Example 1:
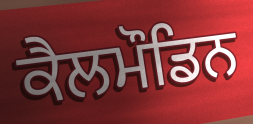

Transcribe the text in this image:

ਕੈਲਮੌਡਿਨ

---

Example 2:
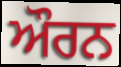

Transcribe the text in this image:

ਔਰਨ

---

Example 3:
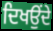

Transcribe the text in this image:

ਦਿਖਉਂਦੇ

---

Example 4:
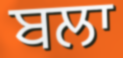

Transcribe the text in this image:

ਬਲਾ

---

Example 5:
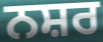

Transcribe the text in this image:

ਨਸ਼ਰ